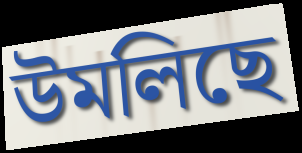
উমলিছে